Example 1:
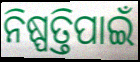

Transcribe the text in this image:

ନିଷ୍ପତ୍ତିପାଇଁ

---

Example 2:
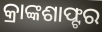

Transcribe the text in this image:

କ୍ରାଙ୍କଶାଫ୍ଟର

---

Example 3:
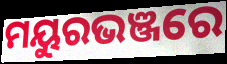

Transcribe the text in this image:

ମୟୁରଭଞ୍ଜରେ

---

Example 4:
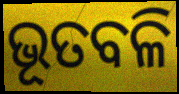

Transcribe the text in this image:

ଭୂତବଳି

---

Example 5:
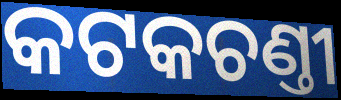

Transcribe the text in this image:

କଟକଚଣ୍ତୀ